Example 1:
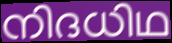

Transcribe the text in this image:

നിദധിഥ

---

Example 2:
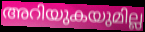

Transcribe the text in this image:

അറിയുകയുമില്ല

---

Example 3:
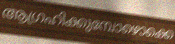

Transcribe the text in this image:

ആഗ്രഹിക്കുമ്പോഴൊക്കെ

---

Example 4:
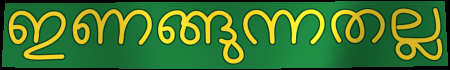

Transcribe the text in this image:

ഇണങ്ങുന്നതല്ല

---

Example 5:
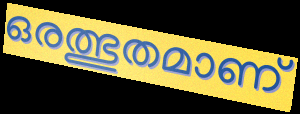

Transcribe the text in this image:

ഒരത്ഭുതമാണ്